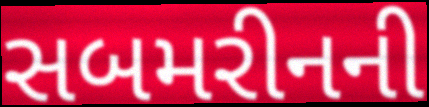
સબમરીનની